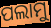
ପଲାମୁ